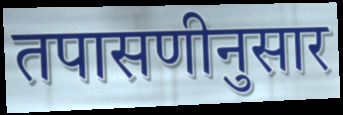
तपासणीनुसार